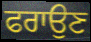
ਫਰਾਉਣ